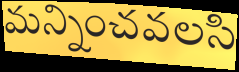
మన్నించవలసి